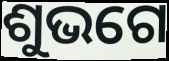
ଶୁଭଗେ